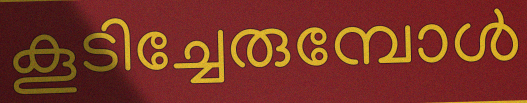
കൂടിച്ചേരുമ്പോൾ